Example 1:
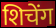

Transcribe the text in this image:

शिचेंग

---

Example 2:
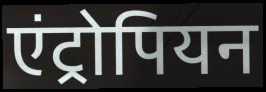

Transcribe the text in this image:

एंट्रोपियन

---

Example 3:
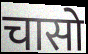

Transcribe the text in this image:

चासो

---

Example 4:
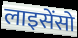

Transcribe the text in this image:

लाइसेंसो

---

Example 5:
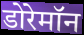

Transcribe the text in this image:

डोरेमॉन